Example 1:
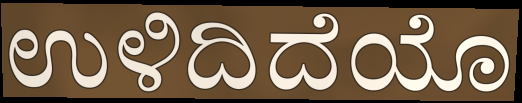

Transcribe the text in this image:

ಉಳಿದಿದೆಯೊ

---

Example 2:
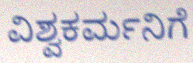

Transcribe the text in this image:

ವಿಶ್ವಕರ್ಮನಿಗೆ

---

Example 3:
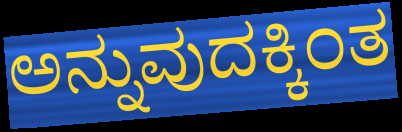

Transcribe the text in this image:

ಅನ್ನುವುದಕ್ಕಿಂತ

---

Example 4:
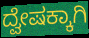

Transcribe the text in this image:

ದ್ವೇಷಕ್ಕಾಗಿ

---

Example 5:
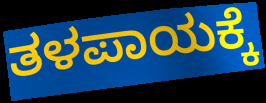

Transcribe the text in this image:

ತಳಪಾಯಕ್ಕೆ